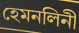
হেমনলিনী